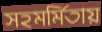
সহমর্মিতায়